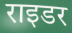
राइडर